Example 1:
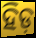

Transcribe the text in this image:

ହିଡ଼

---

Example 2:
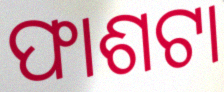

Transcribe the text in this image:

ଫାଶଟା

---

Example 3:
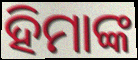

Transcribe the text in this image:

ହିମାଙ୍କ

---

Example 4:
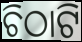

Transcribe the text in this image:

ଚିଠାଟି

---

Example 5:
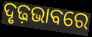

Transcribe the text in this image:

ଦୃଢ଼ଭାବରେ